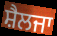
ਸ਼ੈਲਜਾ